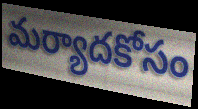
మర్యాదకోసం